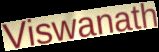
Viswanath